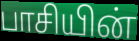
பாசியின்